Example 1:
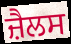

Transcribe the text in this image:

ਜ਼ੈਲਸ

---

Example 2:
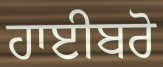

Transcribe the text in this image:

ਹਾਈਬਰੋ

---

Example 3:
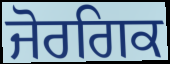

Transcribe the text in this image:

ਜੋਰਗਿਕ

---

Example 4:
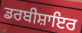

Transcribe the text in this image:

ਡਰਬੀਸ਼ਾਇਰ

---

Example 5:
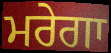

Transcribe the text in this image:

ਮਰੇਗਾ